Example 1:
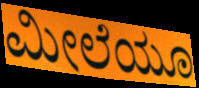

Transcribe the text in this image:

ಮೀಲೆಯೂ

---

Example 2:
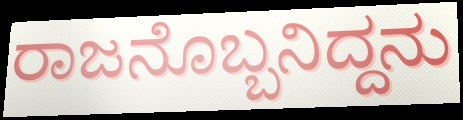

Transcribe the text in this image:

ರಾಜನೊಬ್ಬನಿದ್ದನು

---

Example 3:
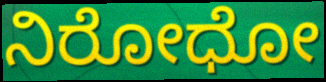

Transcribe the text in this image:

ನಿರೋಧೋ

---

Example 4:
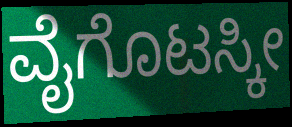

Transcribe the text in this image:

ವೈಗೊಟಸ್ಕೀ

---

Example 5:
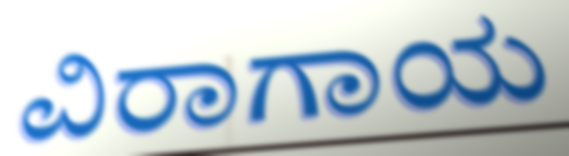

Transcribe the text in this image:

ವಿರಾಗಾಯ